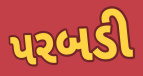
પરબડી